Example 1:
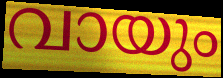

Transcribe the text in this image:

വായും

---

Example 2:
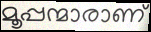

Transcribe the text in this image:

മൂപ്പന്മാരാണ്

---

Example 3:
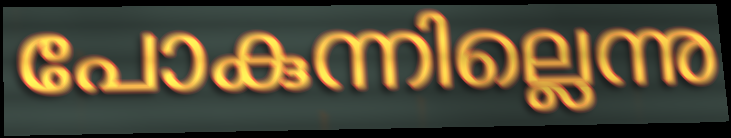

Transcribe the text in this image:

പോകുന്നില്ലെന്നു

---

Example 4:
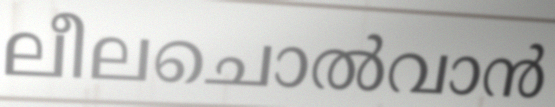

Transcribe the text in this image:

ലീലചൊൽവാൻ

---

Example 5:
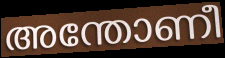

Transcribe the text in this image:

അന്തോണീ